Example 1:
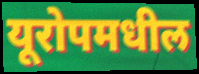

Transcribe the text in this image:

यूरोपमधील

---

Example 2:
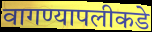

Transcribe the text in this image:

वागण्यापलीकडे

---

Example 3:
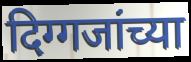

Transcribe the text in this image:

दिग्गजांच्या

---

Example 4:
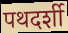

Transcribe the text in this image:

पथदर्शी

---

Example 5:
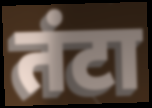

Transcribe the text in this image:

तंटा